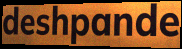
deshpande